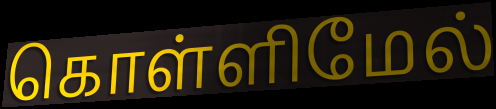
கொள்ளிமேல்